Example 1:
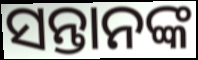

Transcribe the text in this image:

ସନ୍ତାନଙ୍କ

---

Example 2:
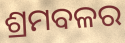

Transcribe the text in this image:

ଶ୍ରମବଳର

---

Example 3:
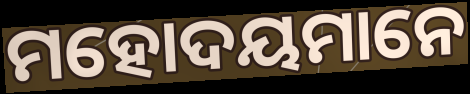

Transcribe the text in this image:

ମହୋଦୟମାନେ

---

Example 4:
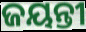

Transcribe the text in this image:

ଜୟନ୍ତୀ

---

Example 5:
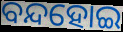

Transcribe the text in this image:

ବନ୍ଦହୋଇ